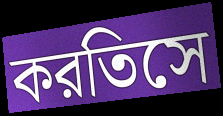
করতিসে